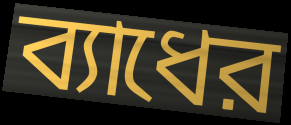
ব্যাধের